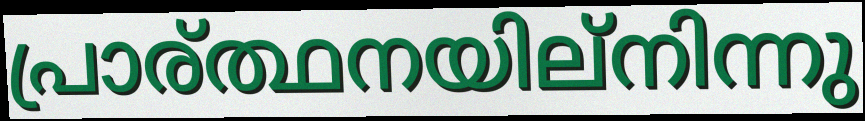
പ്രാര്ത്ഥനയില്നിന്നു